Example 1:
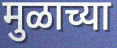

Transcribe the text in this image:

मुळाच्या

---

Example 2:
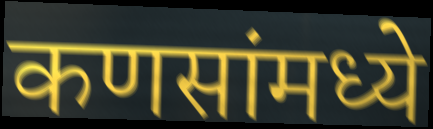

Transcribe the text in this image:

कणसांमध्ये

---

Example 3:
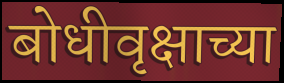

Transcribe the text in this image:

बोधीवृक्षाच्या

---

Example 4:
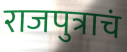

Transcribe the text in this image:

राजपुत्राचं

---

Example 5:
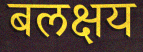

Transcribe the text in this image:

बलक्षय